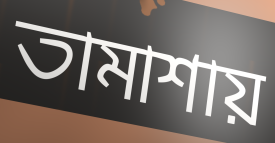
তামাশায়